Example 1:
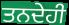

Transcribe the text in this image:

ਤਨਦੇਹੀ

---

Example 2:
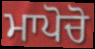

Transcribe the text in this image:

ਮਾਪੋਚੋ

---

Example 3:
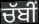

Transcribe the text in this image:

ਚੱਬੀਂ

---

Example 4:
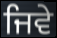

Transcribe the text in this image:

ਜਿਵੇ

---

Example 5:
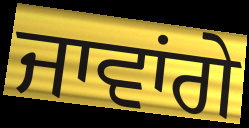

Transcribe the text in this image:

ਜਾਵਾਂਗੇ